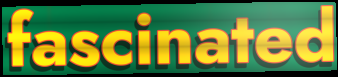
fascinated